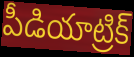
పీడియాట్రిక్